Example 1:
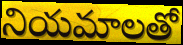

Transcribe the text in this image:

నియమాలతో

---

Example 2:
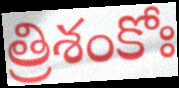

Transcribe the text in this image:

త్రిశంకోః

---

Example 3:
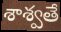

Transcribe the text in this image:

శాశ్వతే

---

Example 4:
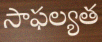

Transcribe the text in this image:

సాఫల్యత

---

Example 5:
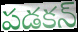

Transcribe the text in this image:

పడకన్